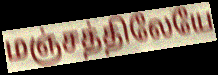
மஞ்சத்திலேயே